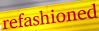
refashioned